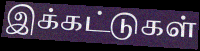
இக்கட்டுகள்